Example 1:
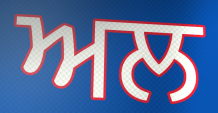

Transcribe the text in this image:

ਅਲ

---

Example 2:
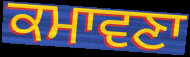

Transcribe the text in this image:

ਕਮਾਵਣਾ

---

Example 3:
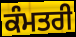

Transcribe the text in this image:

ਕੰਮਤਰੀ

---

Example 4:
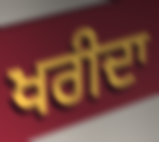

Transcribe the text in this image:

ਖਰੀਦਾ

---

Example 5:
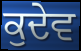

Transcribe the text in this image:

ਕੁਦੇਵ